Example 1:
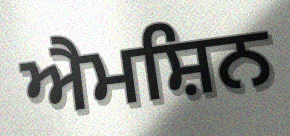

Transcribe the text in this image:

ਐਮਸ਼ਿਨ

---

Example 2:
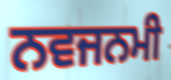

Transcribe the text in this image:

ਨਵਜਨਮੀ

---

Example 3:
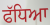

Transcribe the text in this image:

ਫੱਧਿਆ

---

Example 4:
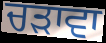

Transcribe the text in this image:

ਚੜਾਵਾ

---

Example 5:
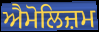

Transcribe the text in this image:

ਐਮੋਲਿਜ਼ਮ